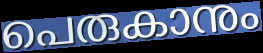
പെരുകാനും